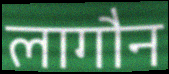
लागौन